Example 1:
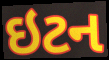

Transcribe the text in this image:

ઇટન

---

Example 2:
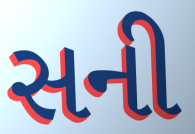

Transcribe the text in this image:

સની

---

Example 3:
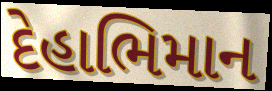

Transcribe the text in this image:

દેહાભિમાન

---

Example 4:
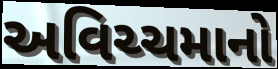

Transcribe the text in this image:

અવિચ્ચમાનો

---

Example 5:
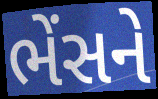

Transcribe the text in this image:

ભેંસને